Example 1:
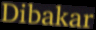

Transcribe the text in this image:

Dibakar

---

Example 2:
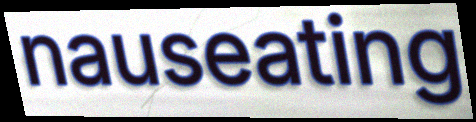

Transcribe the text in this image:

nauseating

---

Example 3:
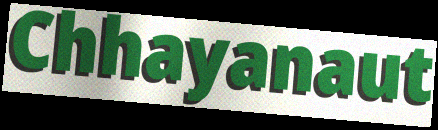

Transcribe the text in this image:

Chhayanaut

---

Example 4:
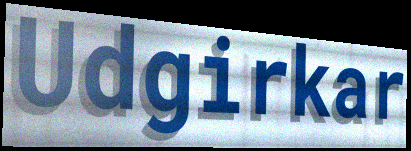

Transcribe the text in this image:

Udgirkar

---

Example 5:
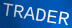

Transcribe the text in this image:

TRADER